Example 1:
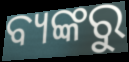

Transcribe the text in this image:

ବ୍ୟଙ୍କରୁ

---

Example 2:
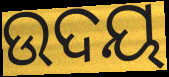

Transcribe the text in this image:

ଉଦୟ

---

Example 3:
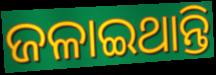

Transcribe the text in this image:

ଜଳାଇଥାନ୍ତି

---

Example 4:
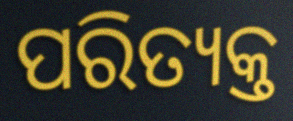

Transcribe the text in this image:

ପରିତ୍ୟକ୍ତ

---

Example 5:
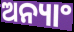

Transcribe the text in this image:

ଅନ୍ୟାଂ